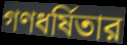
গণধর্ষিতার